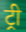
ट्री